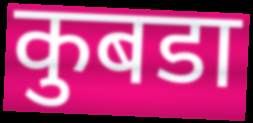
कुबडा